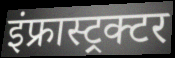
इंफ्रास्ट्रक्टर